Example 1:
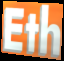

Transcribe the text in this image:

Eth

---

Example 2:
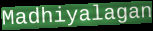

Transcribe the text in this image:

Madhiyalagan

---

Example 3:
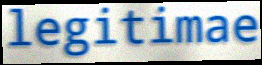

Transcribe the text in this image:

legitimae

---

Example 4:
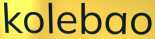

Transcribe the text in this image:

kolebao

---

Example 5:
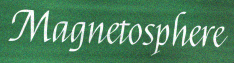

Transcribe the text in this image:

Magnetosphere